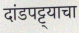
दांडपट्ट्याचा